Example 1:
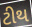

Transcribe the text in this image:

ટીથ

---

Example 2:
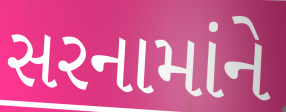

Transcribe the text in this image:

સરનામાંને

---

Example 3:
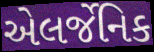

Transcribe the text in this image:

એલર્જેનિક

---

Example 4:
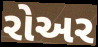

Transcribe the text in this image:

રોઅર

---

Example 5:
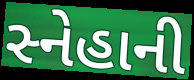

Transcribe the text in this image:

સ્નેહાની